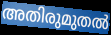
അതിരുമുതൽ